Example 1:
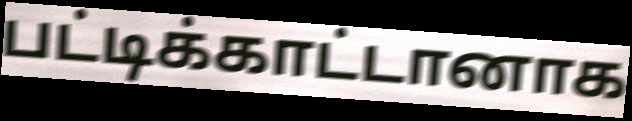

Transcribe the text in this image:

பட்டிக்காட்டானாக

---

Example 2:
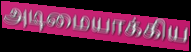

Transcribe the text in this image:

அடிமையாக்கிய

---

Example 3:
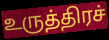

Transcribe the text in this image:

உருத்திரச்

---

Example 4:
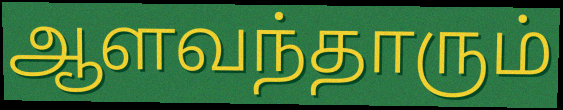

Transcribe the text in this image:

ஆளவந்தாரும்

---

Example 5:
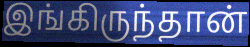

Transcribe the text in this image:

இங்கிருந்தான்